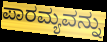
ಪಾರಮ್ಯವನ್ನು